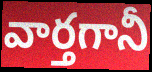
వార్తగానీ